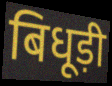
बिधूड़ी